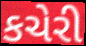
કચેરી